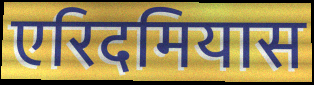
एरिदमियास